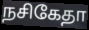
நசிகேதா